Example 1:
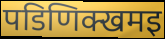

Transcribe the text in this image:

पडिणिक्खमइ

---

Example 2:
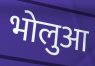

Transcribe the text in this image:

भोलुआ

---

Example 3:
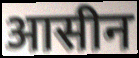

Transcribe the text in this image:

आसीन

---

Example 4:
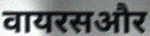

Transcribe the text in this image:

वायरसऔर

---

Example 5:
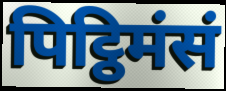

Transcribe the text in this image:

पिट्ठिमंसं